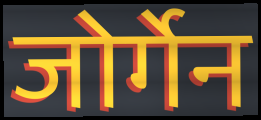
जोर्गेन